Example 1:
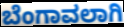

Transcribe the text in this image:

ಬೆಂಗಾವಲಾಗಿ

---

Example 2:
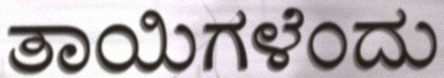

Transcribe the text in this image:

ತಾಯಿಗಳೆಂದು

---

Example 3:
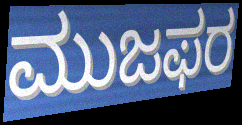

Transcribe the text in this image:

ಮುಜಫರ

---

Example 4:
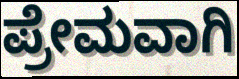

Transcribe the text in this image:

ಪ್ರೇಮವಾಗಿ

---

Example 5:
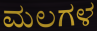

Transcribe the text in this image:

ಮಲಗಳ